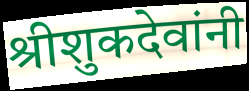
श्रीशुकदेवांनी